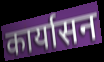
कार्यासन